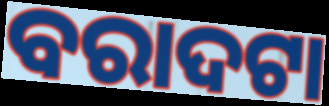
ବରାଦଟା